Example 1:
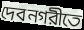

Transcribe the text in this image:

দেবনগরীতে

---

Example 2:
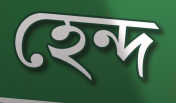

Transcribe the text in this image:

হেন্দ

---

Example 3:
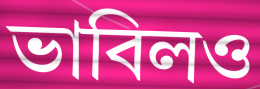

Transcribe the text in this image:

ভাবিলও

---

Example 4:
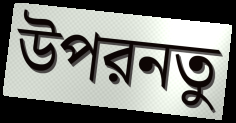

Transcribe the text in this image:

উপরনতু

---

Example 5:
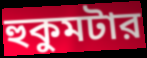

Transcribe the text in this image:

হুকুমটার